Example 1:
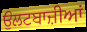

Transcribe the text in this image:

ਉਲਟਬਾਜ਼ੀਆਂ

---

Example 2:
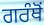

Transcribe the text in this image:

ਗਰੰਥੋਂ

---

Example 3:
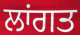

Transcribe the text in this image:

ਲਾਂਗਤ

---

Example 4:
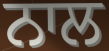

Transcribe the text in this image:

ਨਾਲ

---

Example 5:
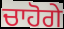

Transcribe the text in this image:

ਚਾਹੋਗੇ